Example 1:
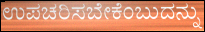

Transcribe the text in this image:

ಉಪಚರಿಸಬೇಕೆಂಬುದನ್ನು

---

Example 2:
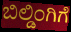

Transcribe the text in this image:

ಬಿಲ್ಡಿಂಗಿಗೆ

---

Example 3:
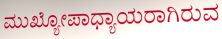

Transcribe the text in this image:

ಮುಖ್ಯೋಪಾಧ್ಯಾಯರಾಗಿರುವ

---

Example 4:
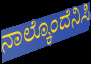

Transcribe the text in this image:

ನಾಲ್ಕೊಂದೆನಿಸಿ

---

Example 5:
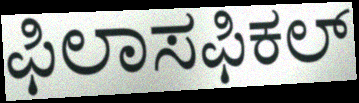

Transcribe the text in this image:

ಫಿಲಾಸಫಿಕಲ್